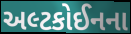
અલ્ટકોઈનના